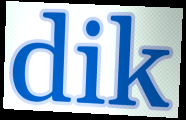
dik